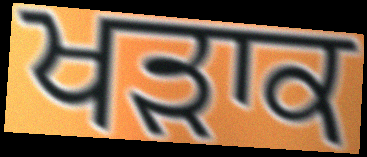
ਖੜਾਕ